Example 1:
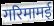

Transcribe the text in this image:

गरिमामई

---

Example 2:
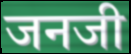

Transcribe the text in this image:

जनजी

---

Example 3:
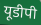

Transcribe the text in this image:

यूडीपी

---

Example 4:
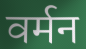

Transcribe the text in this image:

वर्मन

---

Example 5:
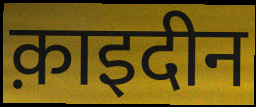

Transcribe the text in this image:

क़ाइदीन